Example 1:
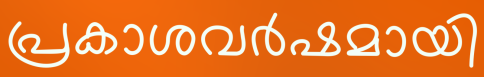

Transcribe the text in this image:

പ്രകാശവർഷമായി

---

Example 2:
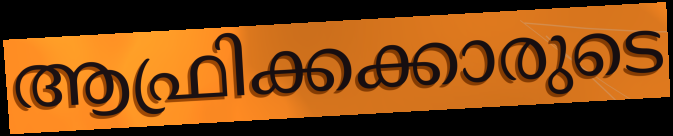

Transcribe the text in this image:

ആഫ്രിക്കക്കാരുടെ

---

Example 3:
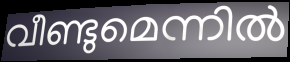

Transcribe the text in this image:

വീണ്ടുമെന്നിൽ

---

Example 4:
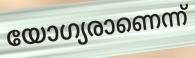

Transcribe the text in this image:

യോഗ്യരാണെന്ന്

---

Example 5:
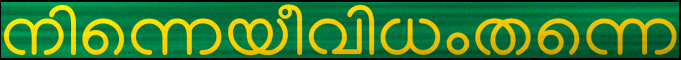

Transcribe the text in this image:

നിന്നെയീവിധംതന്നെ